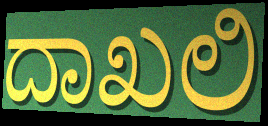
ದಾಖಲಿ